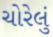
ચોરેલું